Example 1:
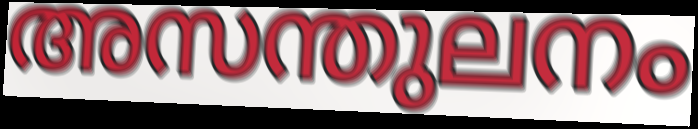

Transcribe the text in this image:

അസന്തുലനം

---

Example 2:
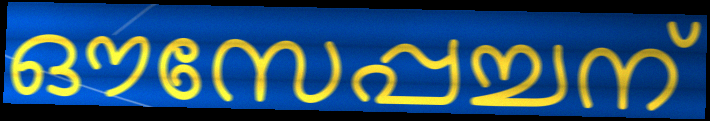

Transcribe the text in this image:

ഔസേപ്പച്ചന്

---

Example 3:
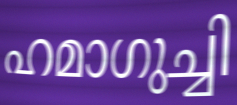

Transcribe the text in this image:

ഹമാഗുച്ചി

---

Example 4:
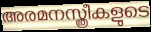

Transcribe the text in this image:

അരമനസ്ത്രീകളുടെ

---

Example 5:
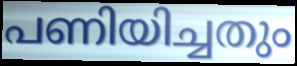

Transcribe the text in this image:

പണിയിച്ചതും